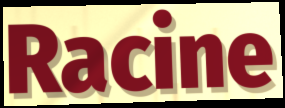
Racine